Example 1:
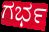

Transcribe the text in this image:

ಗರ್ಭ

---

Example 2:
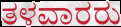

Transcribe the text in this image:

ತಳವಾರರು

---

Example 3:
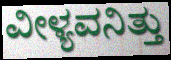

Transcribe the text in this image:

ವೀಳ್ಯವನಿತ್ತು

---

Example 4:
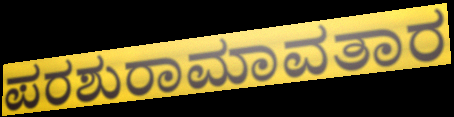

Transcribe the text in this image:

ಪರಶುರಾಮಾವತಾರ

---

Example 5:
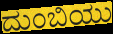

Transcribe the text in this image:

ದುಂಬಿಯು